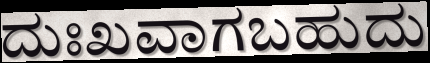
ದುಃಖವಾಗಬಹುದು